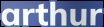
arthur